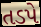
તડપે